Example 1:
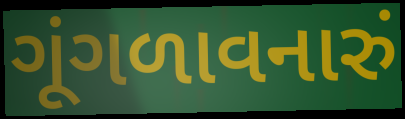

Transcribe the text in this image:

ગૂંગળાવનારું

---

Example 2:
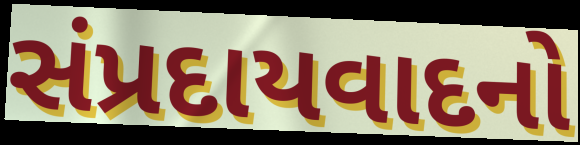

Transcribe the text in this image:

સંપ્રદાયવાદનો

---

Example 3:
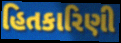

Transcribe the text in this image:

હિતકારિણી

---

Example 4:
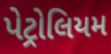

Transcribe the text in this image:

પેટ્રોલિયમ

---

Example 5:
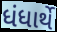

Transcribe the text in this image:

ધંધાર્થે